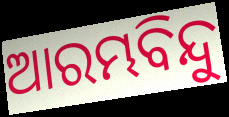
ଆରମ୍ଭବିନ୍ଦୁ